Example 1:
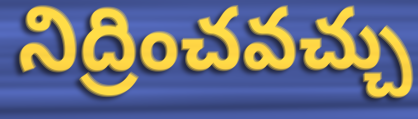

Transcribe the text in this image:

నిద్రించవచ్చు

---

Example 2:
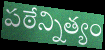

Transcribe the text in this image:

పఠేన్నిత్యం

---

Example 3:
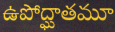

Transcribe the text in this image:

ఉపోద్ఘాతమూ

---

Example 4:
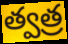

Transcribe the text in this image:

త్వత్ర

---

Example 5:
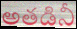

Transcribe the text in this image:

అతడినీ